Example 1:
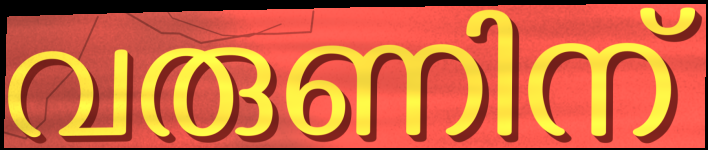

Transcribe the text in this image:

വരുണിന്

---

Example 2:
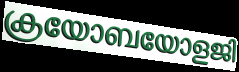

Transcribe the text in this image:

ക്രയോബയോളജി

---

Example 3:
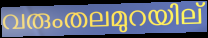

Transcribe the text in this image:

വരുംതലമുറയില്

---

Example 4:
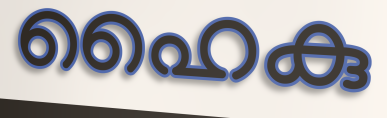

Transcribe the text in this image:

ഹൈകു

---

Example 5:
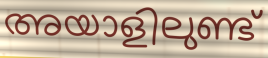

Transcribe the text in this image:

അയാളിലുണ്ട്